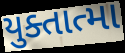
યુક્તાત્મા